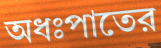
অধঃপাতের